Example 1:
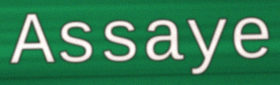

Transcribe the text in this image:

Assaye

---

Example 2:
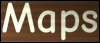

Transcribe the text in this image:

Maps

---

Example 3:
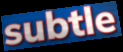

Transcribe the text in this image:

subtle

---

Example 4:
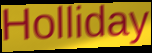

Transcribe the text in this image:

Holliday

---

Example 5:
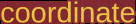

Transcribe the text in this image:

coordinate